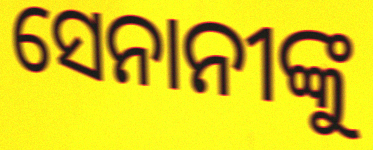
ସେନାନୀଙ୍କୁ